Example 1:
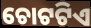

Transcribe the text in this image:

ଚୋଟଟିଏ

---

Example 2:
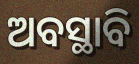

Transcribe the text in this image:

ଅବସ୍ଥାବି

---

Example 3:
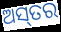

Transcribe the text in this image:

ଅସ୍‌ତର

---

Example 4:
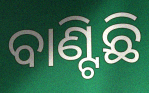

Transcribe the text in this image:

ବାଣ୍ଟିଛି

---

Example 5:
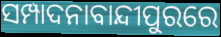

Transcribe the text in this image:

ସମ୍ପାଦନାବାନ୍ଦୀପୁରରେ